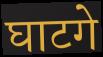
घाटगे